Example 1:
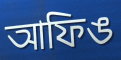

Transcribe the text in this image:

আফিঙ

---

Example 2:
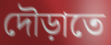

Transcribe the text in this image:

দৌড়াতে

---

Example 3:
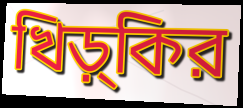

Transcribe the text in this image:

খিড়্‌কির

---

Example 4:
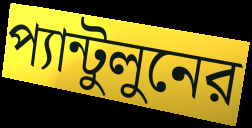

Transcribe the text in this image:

প্যান্টুলুনের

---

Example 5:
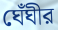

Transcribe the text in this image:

ঘেঁঘীর